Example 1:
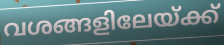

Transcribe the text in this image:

വശങ്ങളിലേയ്ക്ക്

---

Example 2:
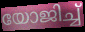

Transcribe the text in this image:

യോജിച്ച്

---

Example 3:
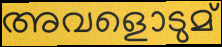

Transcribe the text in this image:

അവളൊടുമ്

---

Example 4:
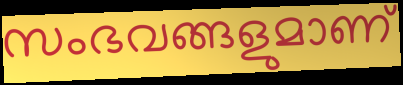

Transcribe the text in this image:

സംഭവങ്ങളുമാണ്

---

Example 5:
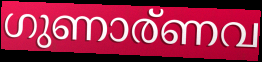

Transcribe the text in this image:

ഗുണാര്ണവ